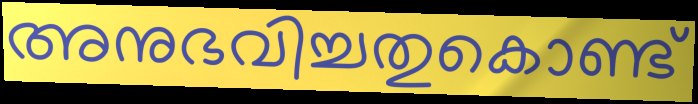
അനുഭവിച്ചതുകൊണ്ട്